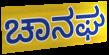
ಚಾನಘ